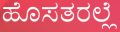
ಹೊಸತರಲ್ಲೆ